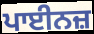
ਪਾਈਨਜ਼